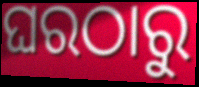
ଘରଠାରୁ